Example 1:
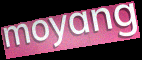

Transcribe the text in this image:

moyang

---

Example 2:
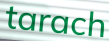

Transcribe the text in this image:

tarach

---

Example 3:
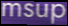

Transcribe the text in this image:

msup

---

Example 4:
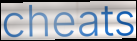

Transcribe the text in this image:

cheats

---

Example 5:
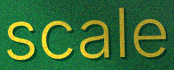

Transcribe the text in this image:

scale